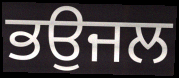
ਭਉਜਲ